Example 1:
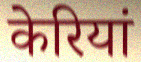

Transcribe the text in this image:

केरियां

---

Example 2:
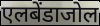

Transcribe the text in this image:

एलबेंडाजोल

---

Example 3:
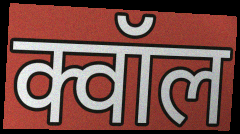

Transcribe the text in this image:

क्वॉल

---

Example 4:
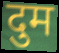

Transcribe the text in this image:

दुम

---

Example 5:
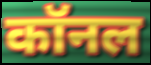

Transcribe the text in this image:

कॉनल